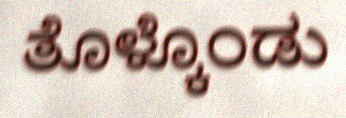
ತೊಳ್ಕೊಂಡು